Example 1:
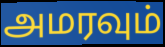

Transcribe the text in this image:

அமரவும்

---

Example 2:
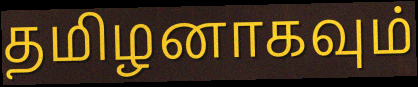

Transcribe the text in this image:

தமிழனாகவும்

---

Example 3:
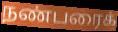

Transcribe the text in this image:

நண்பரைக்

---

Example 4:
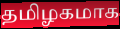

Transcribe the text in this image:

தமிழகமாக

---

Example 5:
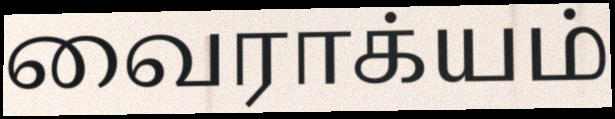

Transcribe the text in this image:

வைராக்யம்